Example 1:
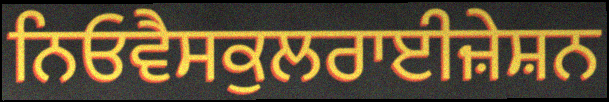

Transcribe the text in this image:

ਨਿਓਵੈਸਕੁਲਰਾਈਜ਼ੇਸ਼ਨ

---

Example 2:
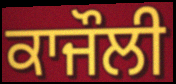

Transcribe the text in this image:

ਕਾਜੌਲੀ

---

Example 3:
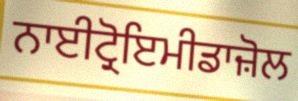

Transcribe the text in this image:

ਨਾਈਟ੍ਰੋਇਮੀਡਾਜ਼ੋਲ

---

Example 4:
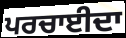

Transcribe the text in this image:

ਪਰਚਾਈਦਾ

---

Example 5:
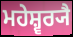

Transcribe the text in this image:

ਮਹੇਸ਼੍ਵਰ੍ਯੈ